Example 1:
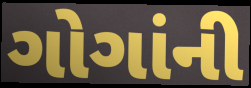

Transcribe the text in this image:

ગોગાંની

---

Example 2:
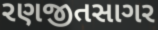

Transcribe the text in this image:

રણજીતસાગર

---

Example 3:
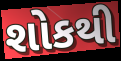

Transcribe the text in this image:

શોકથી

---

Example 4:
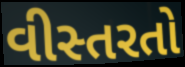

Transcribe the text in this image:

વીસ્તરતો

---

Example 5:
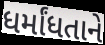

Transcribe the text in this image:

ધર્માંધતાને